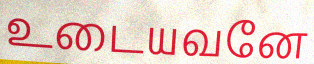
உடையவனே